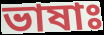
ভাষাঃ